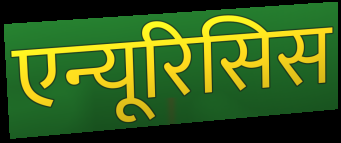
एन्यूरिसिस